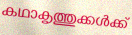
കഥാകൃത്തുക്കൾക്ക്